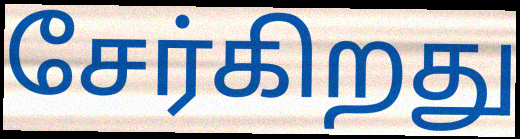
சேர்கிறது